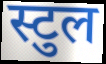
स्टुल